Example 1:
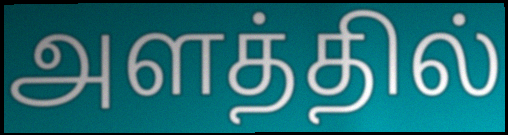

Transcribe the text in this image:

அளத்தில்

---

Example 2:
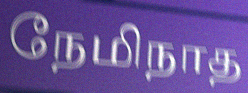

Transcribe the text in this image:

நேமிநாத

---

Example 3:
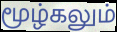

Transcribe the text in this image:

மூழ்கலும்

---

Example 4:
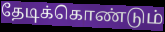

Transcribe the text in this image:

தேடிக்கொண்டும்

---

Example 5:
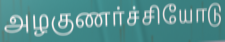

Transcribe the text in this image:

அழகுணர்ச்சியோடு